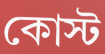
কোস্ট